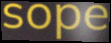
sope